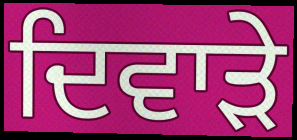
ਦਿਵਾੜੇ